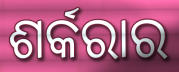
ଶର୍କରାର